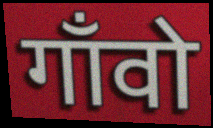
गाँवो